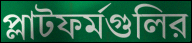
প্লাটফর্মগুলির